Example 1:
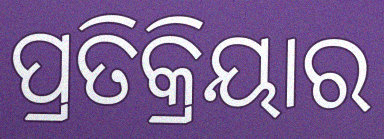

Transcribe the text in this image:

ପ୍ରତିକ୍ରିୟାର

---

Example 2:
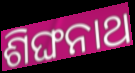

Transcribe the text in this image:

ଶିଙ୍ଘନାଥ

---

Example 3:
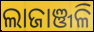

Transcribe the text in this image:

ଲାଜାଞ୍ଜଳି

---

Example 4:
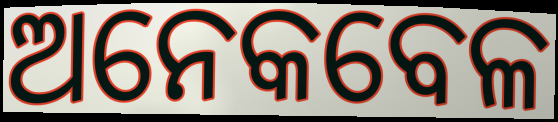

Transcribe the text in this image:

ଅନେକବେଳ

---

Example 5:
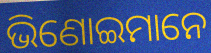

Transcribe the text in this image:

ଭିଣୋଇମାନେ